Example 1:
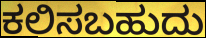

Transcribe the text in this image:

ಕಲಿಸಬಹುದು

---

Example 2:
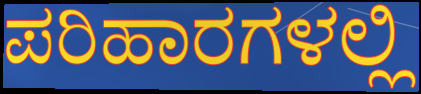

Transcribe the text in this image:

ಪರಿಹಾರಗಳಲ್ಲಿ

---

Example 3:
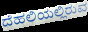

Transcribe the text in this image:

ದೆಹಲಿಯಲ್ಲಿರುವ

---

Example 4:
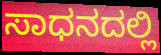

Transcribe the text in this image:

ಸಾಧನದಲ್ಲಿ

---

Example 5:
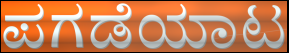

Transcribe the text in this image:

ಪಗಡೆಯಾಟ